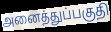
அனைத்துப்பகுதி